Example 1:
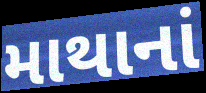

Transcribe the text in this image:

માથાનાં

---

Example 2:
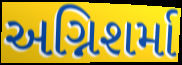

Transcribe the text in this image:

અગ્નિશર્મા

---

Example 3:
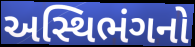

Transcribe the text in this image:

અસ્થિભંગનો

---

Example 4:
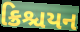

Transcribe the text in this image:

ક્રિશ્ચયન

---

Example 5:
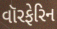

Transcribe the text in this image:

વૉરફેરિન